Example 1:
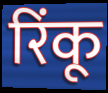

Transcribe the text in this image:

रिंकू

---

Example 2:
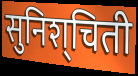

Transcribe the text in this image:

सुनिश्चिती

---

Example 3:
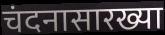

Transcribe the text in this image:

चंदनासारख्या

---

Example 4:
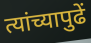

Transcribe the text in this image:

त्यांच्यापुढें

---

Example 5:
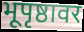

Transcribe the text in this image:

भूपृष्ठावर